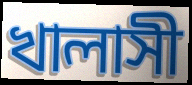
খালাসী